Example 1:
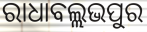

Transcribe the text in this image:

ରାଧାବଲ୍ଲଭପୁର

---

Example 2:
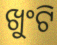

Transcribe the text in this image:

ଖୁଂଟି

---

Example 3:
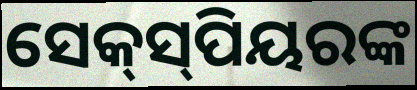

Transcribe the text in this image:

ସେକ୍‌ସ୍‌ପିୟରଙ୍କ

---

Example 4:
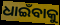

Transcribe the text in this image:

ଧାଇଁବାକୁ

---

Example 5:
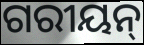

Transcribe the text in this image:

ଗରୀୟନ୍